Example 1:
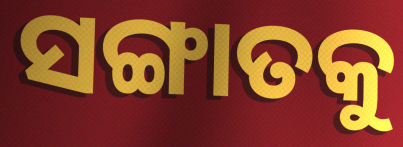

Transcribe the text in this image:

ସଙ୍ଗାତକୁ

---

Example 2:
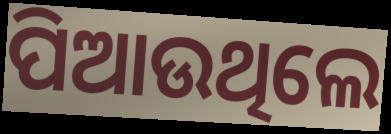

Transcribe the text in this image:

ପିଆଉଥିଲେ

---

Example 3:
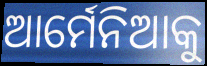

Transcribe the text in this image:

ଆର୍ମେନିଆକୁ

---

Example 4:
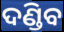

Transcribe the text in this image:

ଦଣ୍ଡିବ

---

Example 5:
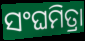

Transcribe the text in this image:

ସଂଘମିତ୍ରା